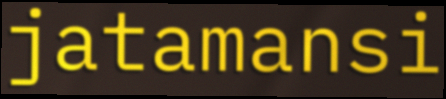
jatamansi